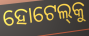
ହୋଟେଲ୍‌କୁ